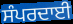
ਸੰਪਰਦਾਈ